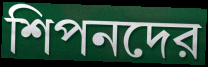
শিপনদের